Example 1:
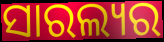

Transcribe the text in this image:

ସାରଲ୍ୟର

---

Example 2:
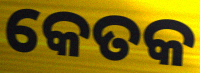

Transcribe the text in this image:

କେତକ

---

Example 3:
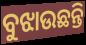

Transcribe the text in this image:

ବୁଝାଉଛନ୍ତି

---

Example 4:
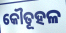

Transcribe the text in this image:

କୌତୂହଳ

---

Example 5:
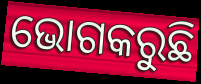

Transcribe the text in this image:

ଭୋଗକରୁଛି